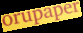
orupaper